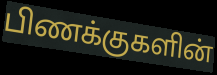
பிணக்குகளின்